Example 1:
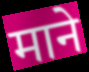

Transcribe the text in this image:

माने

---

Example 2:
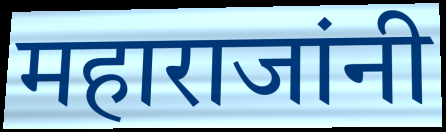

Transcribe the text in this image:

महाराजांनी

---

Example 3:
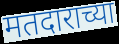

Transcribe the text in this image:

मतदाराच्या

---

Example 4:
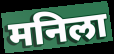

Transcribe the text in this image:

मनिला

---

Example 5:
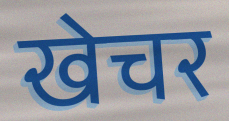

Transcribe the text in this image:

खेचर